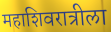
महाशिवरात्रीला